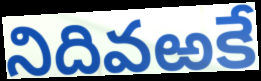
నిదివఱకే